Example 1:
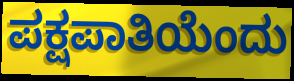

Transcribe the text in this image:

ಪಕ್ಷಪಾತಿಯೆಂದು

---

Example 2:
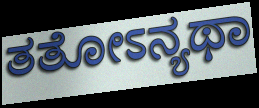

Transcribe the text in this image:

ತತೋಽನ್ಯಥಾ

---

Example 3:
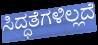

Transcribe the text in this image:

ಸಿದ್ಧತೆಗಳಿಲ್ಲದೆ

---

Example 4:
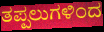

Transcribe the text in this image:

ತಪ್ಪಲುಗಳಿಂದ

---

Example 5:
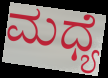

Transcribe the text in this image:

ಮಧ್ಯೆ